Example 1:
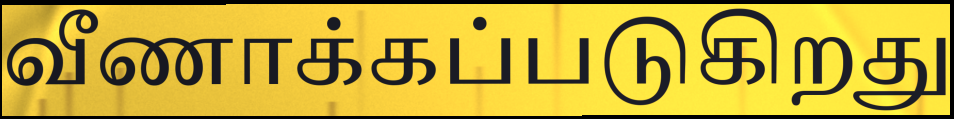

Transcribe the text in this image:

வீணாக்கப்படுகிறது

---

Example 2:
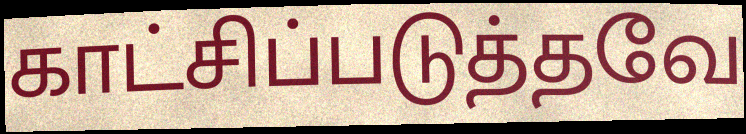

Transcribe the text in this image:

காட்சிப்படுத்தவே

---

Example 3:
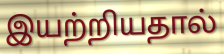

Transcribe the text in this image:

இயற்றியதால்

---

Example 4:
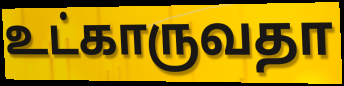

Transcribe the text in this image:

உட்காருவதா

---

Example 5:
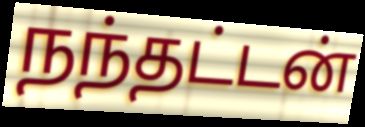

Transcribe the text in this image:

நந்தட்டன்